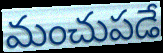
మంచుపడే